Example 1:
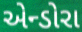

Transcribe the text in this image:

એન્ડોરા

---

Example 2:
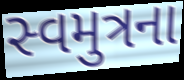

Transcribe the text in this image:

સ્વમુત્રના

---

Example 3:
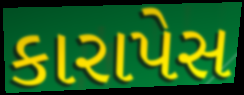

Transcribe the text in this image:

કારાપેસ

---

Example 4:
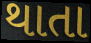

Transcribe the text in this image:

થાતા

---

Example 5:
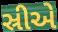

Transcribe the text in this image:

સ્રીએ